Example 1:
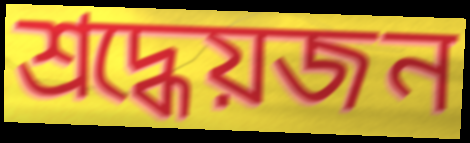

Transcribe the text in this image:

শ্রদ্ধেয়জন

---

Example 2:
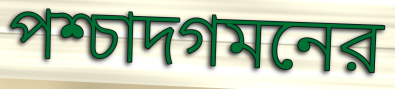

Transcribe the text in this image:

পশ্চাদগমনের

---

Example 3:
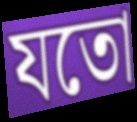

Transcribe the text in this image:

যতো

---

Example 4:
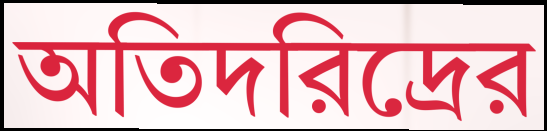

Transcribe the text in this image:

অতিদরিদ্রের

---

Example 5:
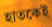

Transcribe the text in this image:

হাতকেই